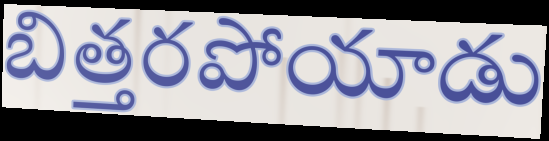
బిత్తరపోయాడు